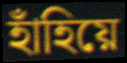
হাঁহিয়ে